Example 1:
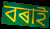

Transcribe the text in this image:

বৰাই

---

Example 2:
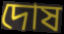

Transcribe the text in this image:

দোষ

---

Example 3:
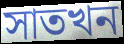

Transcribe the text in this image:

সাতখন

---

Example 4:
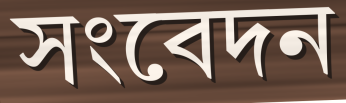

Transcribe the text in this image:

সংবেদন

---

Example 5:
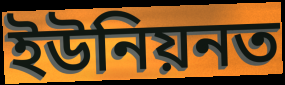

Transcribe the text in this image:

ইউনিয়নত